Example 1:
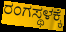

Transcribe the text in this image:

ರಂಗಸ್ಥಳಕ್ಕೆ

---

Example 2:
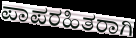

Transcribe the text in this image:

ಪಾಪರಹಿತರಾಗಿ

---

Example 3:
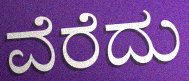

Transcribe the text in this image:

ವೆರೆದು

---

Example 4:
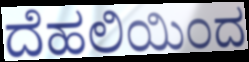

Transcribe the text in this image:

ದೆಹಲಿಯಿಂದ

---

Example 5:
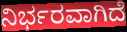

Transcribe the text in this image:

ನಿರ್ಭರವಾಗಿದೆ